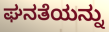
ಘನತೆಯನ್ನು